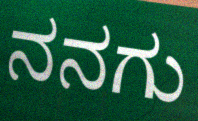
ನನಗು